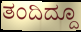
ತಂದಿದ್ದೂ